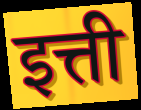
इत्ती